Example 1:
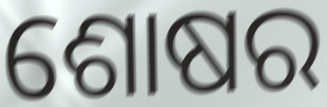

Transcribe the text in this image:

ଶୋଷର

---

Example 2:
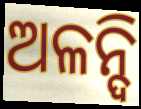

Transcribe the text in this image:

ଅଳନ୍ଦି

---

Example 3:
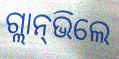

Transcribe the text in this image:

ଗ୍ଲାନ୍‌ଭିଲେ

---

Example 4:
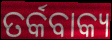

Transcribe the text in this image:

ତର୍କବାକ୍ୟ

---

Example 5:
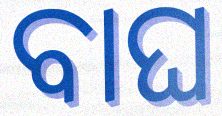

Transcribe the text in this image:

ବାଘ